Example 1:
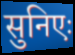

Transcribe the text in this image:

सुनिएः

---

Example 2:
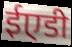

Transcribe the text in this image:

ईएडी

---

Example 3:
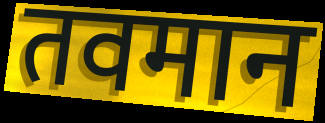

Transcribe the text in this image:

तवमान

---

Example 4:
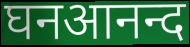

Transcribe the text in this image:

घनआनन्द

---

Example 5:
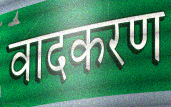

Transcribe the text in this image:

वादकरण